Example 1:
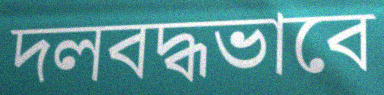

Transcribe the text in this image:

দলবদ্ধভাবে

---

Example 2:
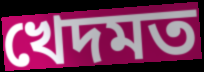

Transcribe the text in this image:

খেদমত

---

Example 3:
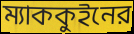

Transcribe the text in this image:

ম্যাককুইনের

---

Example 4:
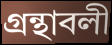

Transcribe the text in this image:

গ্রন্থাবলী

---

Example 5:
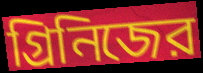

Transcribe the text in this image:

গ্রিনিজের